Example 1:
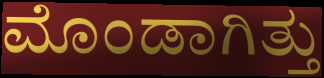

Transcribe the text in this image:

ಮೊಂಡಾಗಿತ್ತು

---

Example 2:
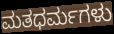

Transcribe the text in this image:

ಮತಧರ್ಮಗಳು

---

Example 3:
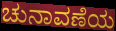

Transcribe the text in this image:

ಚುನಾವಣೆಯ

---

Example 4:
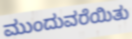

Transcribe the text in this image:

ಮುಂದುವರೆಯಿತು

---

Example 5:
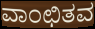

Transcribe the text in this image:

ವಾಂಛಿತವ